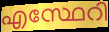
എസ്ഥേറി